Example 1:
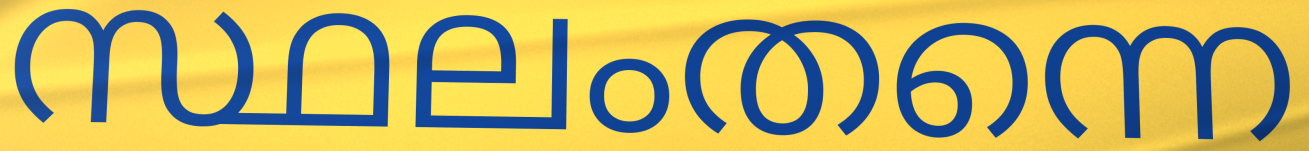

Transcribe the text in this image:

സ്ഥലംതന്നെ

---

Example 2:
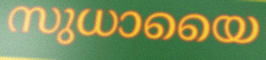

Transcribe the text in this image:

സുധായൈ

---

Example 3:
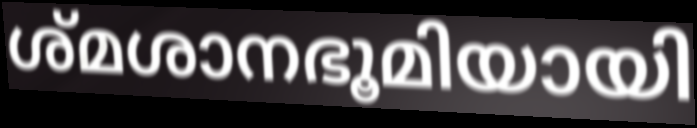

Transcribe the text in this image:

ശ്മശാനഭൂമിയായി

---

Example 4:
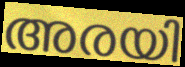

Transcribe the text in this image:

അരയി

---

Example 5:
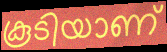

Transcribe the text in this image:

കൂടിയാണ്